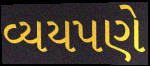
વ્યયપણે